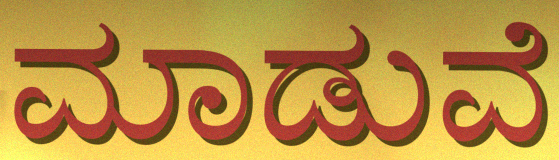
ಮಾಡುವೆ